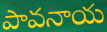
పావనాయ